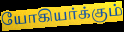
யோகியர்க்கும்